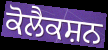
ਕੋਲੈਕਸ਼ਨ